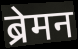
ब्रेमन